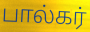
பால்கர்